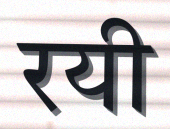
रयी